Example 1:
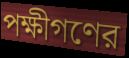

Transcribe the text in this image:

পক্ষীগণের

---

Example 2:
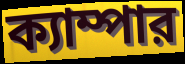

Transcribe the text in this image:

ক্যাম্পার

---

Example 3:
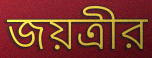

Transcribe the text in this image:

জয়ত্রীর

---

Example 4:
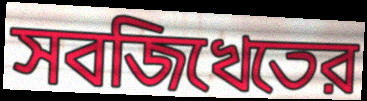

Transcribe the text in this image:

সবজিখেতের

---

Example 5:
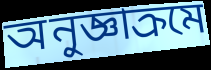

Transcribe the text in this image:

অনুজ্ঞাক্রমে